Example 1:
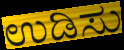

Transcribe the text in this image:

ಉಡಿಸು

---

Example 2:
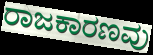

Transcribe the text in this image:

ರಾಜಕಾರಣವು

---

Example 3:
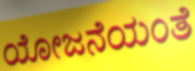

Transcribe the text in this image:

ಯೋಜನೆಯಂತೆ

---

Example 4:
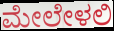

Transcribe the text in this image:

ಮೇಲೇಳಲಿ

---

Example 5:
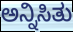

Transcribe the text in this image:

ಅನ್ನಿಸಿತು